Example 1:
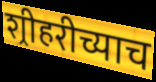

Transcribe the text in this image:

श्रीहरीच्याच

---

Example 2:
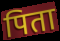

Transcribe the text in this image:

पिता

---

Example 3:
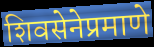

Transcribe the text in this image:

शिवसेनेप्रमाणे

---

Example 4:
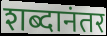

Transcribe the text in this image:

शब्दानंतर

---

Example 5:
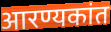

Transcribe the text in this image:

आरण्यकांत